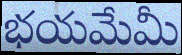
భయమేమీ